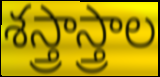
శస్త్రాస్త్రాల